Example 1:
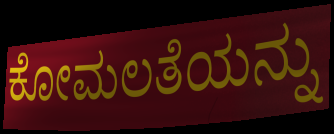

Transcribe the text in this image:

ಕೋಮಲತೆಯನ್ನು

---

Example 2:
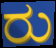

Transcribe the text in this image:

ರು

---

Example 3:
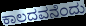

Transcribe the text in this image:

ಕಾಲದವನೆಂದು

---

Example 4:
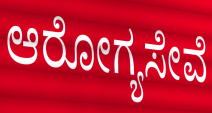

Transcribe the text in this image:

ಆರೋಗ್ಯಸೇವೆ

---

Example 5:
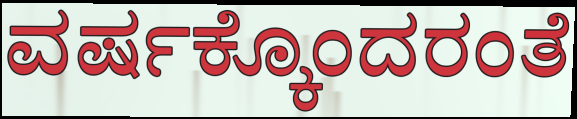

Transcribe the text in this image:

ವರ್ಷಕ್ಕೊಂದರಂತೆ